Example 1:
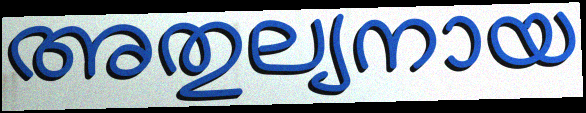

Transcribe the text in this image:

അതുല്യനായ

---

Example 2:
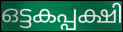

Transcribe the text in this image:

ഒട്ടകപ്പക്ഷി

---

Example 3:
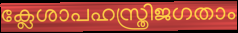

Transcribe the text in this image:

ക്ലേശാപഹസ്ത്രിജഗതാം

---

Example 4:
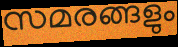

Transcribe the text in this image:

സമരങ്ങളും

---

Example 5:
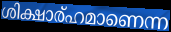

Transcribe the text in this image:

ശിക്ഷാര്ഹമാണെന്ന